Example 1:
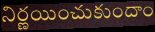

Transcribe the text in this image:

నిర్ణయించుకుందాం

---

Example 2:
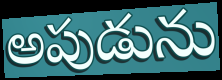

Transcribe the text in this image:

అపుడును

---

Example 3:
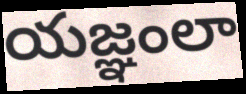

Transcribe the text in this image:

యజ్ఞంలా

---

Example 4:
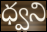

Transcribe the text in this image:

ధ్వని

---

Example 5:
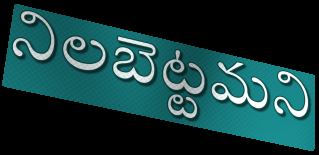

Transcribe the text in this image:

నిలబెట్టమని